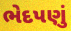
ભેદપણું